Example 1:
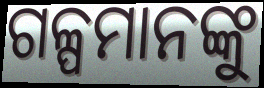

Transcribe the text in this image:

ଗଳ୍ପମାନଙ୍କୁ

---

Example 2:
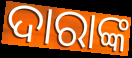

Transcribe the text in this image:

ଦାରାଙ୍କ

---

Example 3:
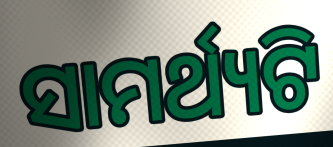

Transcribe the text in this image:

ସାମର୍ଥ୍ୟଟି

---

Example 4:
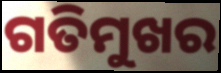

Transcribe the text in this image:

ଗତିମୁଖର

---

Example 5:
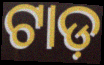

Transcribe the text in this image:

ଟାଡ଼